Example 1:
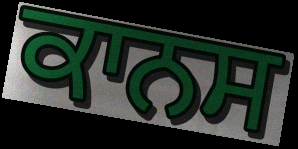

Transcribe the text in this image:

ਕਾਨਸ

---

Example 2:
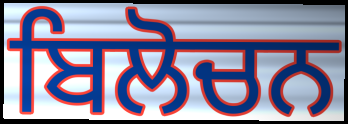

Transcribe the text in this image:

ਬਿਲੋਚਨ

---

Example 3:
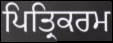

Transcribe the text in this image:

ਪਿਤ੍ਰਿਕਰਮ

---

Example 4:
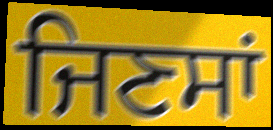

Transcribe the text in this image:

ਜਿਣਸਾਂ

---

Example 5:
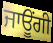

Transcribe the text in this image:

ਜਾਊਂਗੀ